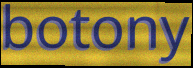
botony